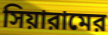
সিয়ারামের